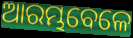
ଆରମ୍ଭବେଳେ